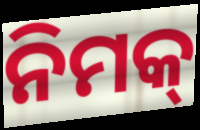
ନିମକ୍